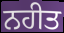
ਨਹੀਤ